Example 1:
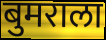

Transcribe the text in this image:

बुमराला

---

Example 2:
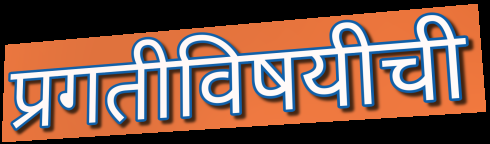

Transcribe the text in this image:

प्रगतीविषयीची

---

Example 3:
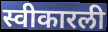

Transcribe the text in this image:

स्वीकारली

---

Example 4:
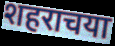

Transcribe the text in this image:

शहराचया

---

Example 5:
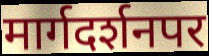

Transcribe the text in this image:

मार्गदर्शनपर